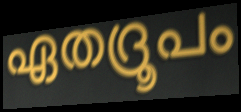
ഏതദ്രൂപം